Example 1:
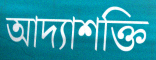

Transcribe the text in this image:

আদ্যাশক্তি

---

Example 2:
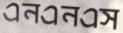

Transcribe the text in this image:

এনএনএস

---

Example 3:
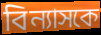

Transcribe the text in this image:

বিন্যাসকে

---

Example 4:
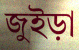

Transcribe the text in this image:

জুইড়া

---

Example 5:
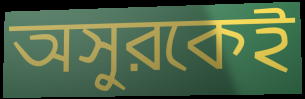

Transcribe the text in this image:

অসুরকেই